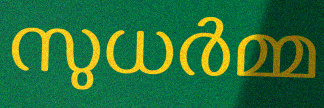
സുധർമ്മ